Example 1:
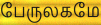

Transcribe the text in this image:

பேருலகமே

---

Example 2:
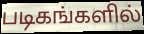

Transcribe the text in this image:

படிகங்களில்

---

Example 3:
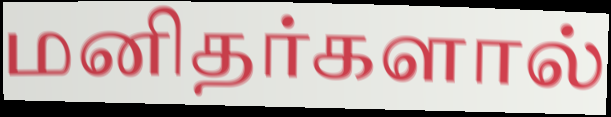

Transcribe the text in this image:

மனிதர்களால்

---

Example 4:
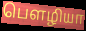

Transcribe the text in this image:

பௌழியா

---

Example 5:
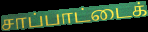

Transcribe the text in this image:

சாப்பாட்டைக்